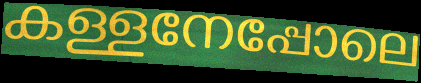
കള്ളനേപ്പോലെ